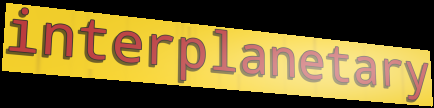
interplanetary